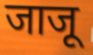
जाजू